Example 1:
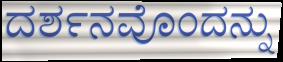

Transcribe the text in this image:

ದರ್ಶನವೊಂದನ್ನು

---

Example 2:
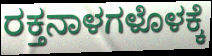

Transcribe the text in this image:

ರಕ್ತನಾಳಗಳೊಳಕ್ಕೆ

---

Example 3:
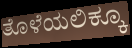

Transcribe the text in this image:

ತೊಳೆಯಲಿಕ್ಕೂ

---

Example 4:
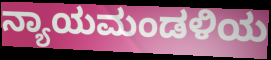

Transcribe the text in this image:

ನ್ಯಾಯಮಂಡಳಿಯ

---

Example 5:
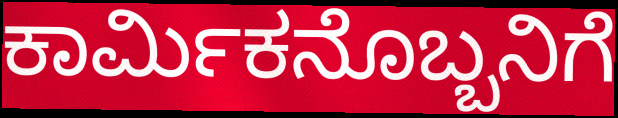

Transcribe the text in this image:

ಕಾರ್ಮಿಕನೊಬ್ಬನಿಗೆ